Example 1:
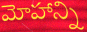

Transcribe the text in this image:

మోహాన్ని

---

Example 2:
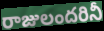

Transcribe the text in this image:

రాజులందరినీ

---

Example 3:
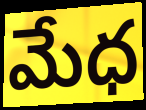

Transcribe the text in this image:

మేధ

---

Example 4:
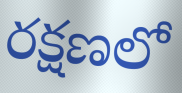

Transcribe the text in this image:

రక్షణలో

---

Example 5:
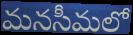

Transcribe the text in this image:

మనసీమలో